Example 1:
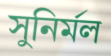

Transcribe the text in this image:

সুনির্মল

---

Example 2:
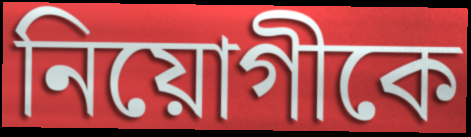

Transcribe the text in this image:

নিয়োগীকে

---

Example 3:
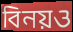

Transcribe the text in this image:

বিনয়ও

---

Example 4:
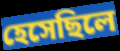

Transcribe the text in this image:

হেসেছিলে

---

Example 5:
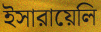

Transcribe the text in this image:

ইসারায়েলি